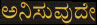
ಅನಿಸುವುದೇ